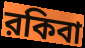
রকিবা